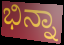
ಭಿನ್ನಾ